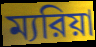
ম্যরিয়া